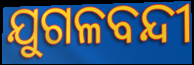
ଯୁଗଳବନ୍ଦୀ